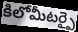
కిలోమీటర్పై